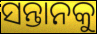
ସନ୍ତାନକୁ